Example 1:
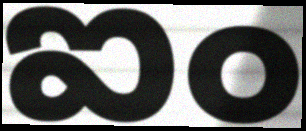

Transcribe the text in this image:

ఐం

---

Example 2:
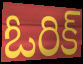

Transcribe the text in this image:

ఓరిక్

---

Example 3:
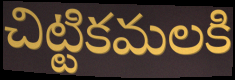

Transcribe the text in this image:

చిట్టికమలకి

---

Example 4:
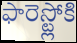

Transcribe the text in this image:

ఫారెస్ట్లోకి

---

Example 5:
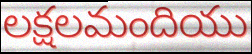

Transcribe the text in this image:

లక్షలమందియు